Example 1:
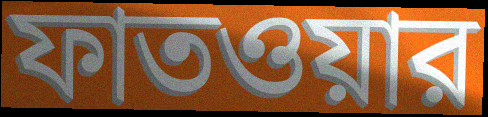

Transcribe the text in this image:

ফাতওয়ার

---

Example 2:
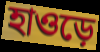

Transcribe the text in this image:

হাওড়ে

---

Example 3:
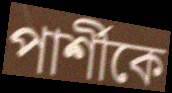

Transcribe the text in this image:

পার্শীকে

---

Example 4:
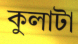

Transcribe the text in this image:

কুলাটা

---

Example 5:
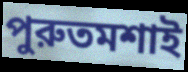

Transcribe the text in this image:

পুরুতমশাই